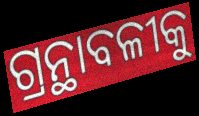
ଗ୍ରନ୍ଥାବଳୀକୁ